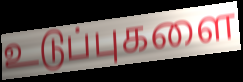
உடுப்புகளை